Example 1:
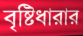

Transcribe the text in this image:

বৃষ্টিধারার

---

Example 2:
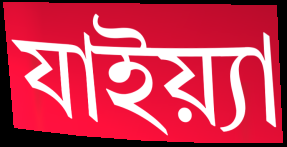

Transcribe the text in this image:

যাইয়্যা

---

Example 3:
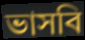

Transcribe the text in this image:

ভাসবি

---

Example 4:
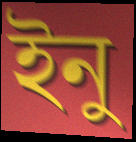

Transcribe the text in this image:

ইনু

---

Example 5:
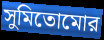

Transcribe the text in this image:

সুমিতোমোর